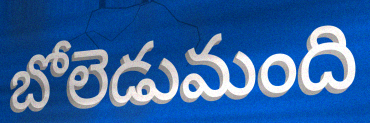
బోలెడుమంది